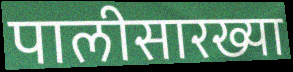
पालीसारख्या